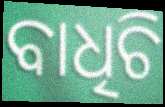
ବାଧିଚି